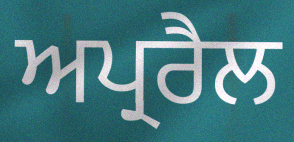
ਅਪ੍ਰਰੈਲ